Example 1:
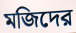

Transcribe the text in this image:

মজিদের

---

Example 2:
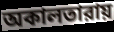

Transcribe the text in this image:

অকালতারায়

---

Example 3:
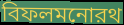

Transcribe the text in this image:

বিফলমনোরথ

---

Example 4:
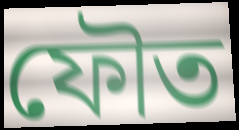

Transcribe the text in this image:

ফৌত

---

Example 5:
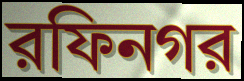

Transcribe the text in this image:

রফিনগর